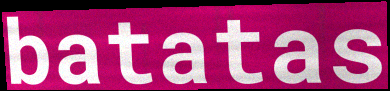
batatas